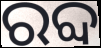
ରବ୍ଦ